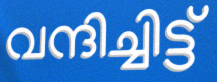
വന്ദിച്ചിട്ട്